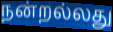
நன்றல்லது